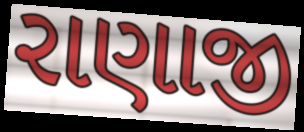
રાણાજી